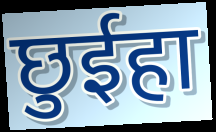
छुईहा